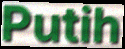
Putih